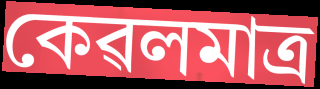
কেৱলমাত্ৰ